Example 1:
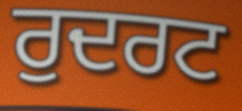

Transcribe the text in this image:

ਰੁਦਰਟ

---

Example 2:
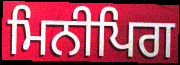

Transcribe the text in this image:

ਮਿਨੀਪਿਗ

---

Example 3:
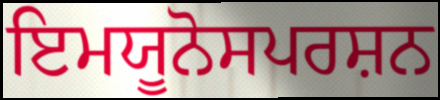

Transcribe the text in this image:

ਇਮਯੂਨੋਸਪਰਸ਼ਨ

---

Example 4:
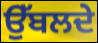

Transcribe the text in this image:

ਉੱਬਲਦੇ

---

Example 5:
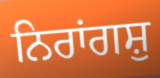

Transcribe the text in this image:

ਨਿਰਾਂਗਸ਼ੁ